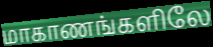
மாகாணங்களிலே